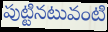
పుట్టినటువంటి